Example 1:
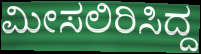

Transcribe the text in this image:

ಮೀಸಲಿರಿಸಿದ್ದ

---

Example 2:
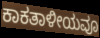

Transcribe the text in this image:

ಕಾಕತಾಳೀಯವೂ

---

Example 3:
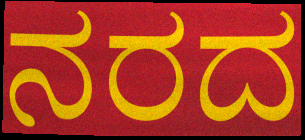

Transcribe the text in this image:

ನರದ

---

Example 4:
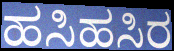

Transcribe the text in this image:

ಹಸಿಹಸಿರ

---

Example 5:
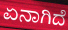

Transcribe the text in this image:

ಏನಾಗಿದೆ